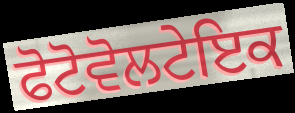
ਫੋਟੋਵੋਲਟੇਇਕ